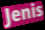
Jenis